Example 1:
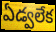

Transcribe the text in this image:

ఏడ్వలేక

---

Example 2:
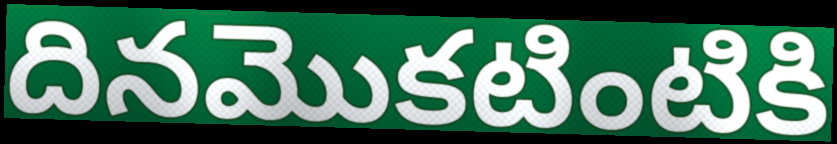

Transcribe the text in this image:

దినమొకటింటికి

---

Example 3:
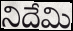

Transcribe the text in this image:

నిదేమి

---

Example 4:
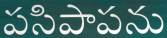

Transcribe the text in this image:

పసిపాపను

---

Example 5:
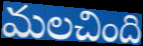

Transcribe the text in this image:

మలచింది